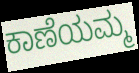
ಕಾಣೆಯಮ್ಮ